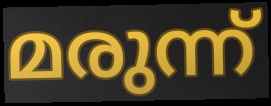
മരുന്ന്